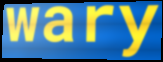
wary